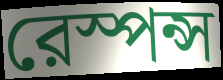
রেস্পন্স